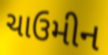
ચાઉમીન